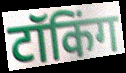
टॉकिंग